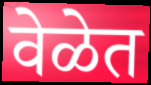
वेळेत